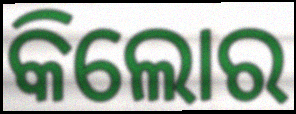
କିଲୋର